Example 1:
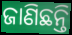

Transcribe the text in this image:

ଜାଣିଛନ୍ତି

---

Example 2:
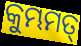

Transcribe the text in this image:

କୁମ୍ଭମତ୍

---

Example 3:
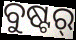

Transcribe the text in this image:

ବୁଷ୍ଟର୍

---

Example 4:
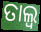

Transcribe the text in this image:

ତାଲ୍ୱ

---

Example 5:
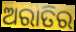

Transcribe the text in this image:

ଅରାତିର